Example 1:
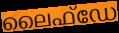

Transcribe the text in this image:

ലൈഫ്ഡേ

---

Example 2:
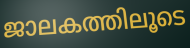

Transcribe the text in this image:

ജാലകത്തിലൂടെ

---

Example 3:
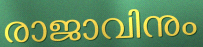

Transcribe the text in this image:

രാജാവിനും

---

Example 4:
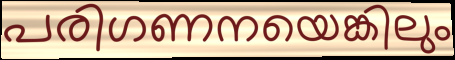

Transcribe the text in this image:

പരിഗണനയെങ്കിലും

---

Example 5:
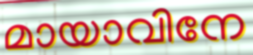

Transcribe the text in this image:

മായാവിനേ